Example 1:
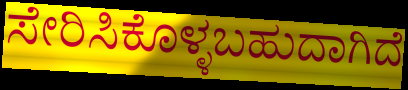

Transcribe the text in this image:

ಸೇರಿಸಿಕೊಳ್ಳಬಹುದಾಗಿದೆ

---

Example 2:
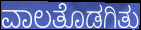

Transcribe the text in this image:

ವಾಲತೊಡಗಿತು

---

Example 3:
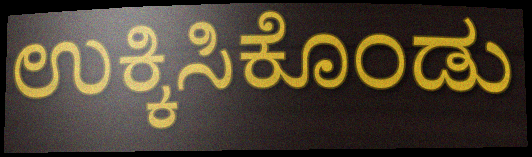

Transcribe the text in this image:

ಉಕ್ಕಿಸಿಕೊಂಡು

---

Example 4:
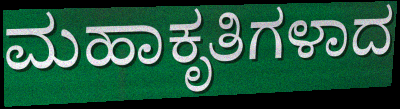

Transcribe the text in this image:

ಮಹಾಕೃತಿಗಳಾದ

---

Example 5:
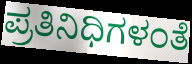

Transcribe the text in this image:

ಪ್ರತಿನಿಧಿಗಳಂತೆ